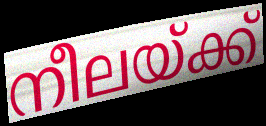
നീലയ്ക്ക്